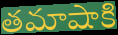
తమాషాకి